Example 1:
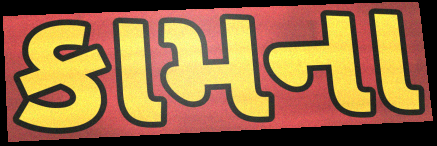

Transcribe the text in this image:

કામના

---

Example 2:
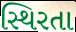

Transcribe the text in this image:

સ્થિરતા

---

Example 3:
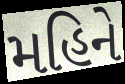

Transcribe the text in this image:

મહિને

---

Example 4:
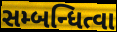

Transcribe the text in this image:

સમ્બન્ધિત્વા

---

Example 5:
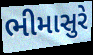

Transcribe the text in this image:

ભીમાસુરે